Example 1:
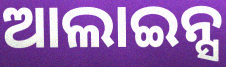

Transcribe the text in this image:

ଆଲାଇନ୍ସ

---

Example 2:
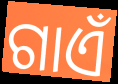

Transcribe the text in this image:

ଗାଏଁ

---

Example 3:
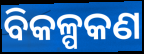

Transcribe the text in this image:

ବିକଳ୍ପକଣ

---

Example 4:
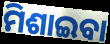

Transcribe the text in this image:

ମିଶାଇବା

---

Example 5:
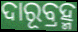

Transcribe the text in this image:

ଦାରୂବ୍ରହ୍ମ